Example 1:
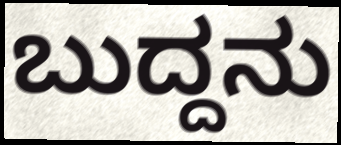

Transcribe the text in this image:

ಬುದ್ದನು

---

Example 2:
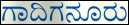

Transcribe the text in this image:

ಗಾದಿಗನೂರು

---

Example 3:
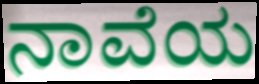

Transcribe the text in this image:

ನಾವೆಯ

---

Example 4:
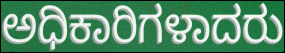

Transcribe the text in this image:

ಅಧಿಕಾರಿಗಳಾದರು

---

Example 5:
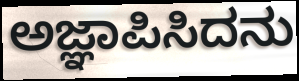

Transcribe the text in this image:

ಅಜ್ಞಾಪಿಸಿದನು